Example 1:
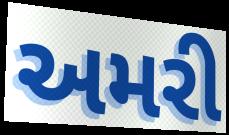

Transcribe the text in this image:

અમરી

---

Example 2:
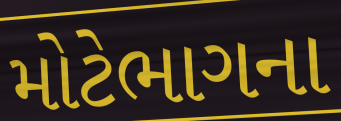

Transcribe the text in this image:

મોટેભાગના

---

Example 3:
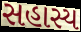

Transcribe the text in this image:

સહાસ્ય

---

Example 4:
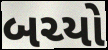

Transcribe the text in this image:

બચ્યો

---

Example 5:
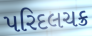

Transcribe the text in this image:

પરિદલચક્ર